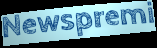
Newspremi